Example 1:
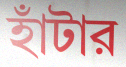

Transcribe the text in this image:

হাঁটার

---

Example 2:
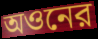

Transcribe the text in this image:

অওনের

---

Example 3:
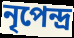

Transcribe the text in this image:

নৃপেন্দ্র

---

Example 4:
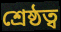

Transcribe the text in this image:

শ্রেষ্ঠত্ব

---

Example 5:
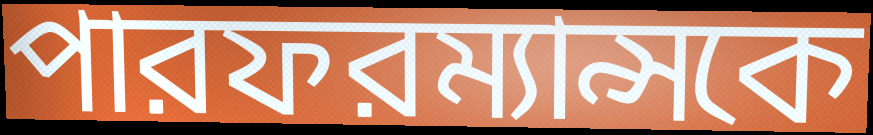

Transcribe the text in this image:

পারফরম্যান্সকে